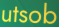
utsob